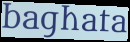
baghata